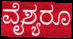
ವೈಶ್ಯರೂ